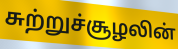
சுற்றுச்சூழலின்